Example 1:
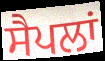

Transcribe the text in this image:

ਸੈਪਲਾਂ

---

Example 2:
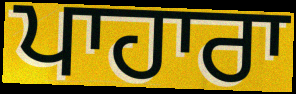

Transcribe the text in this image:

ਪਾਹਾਰਾ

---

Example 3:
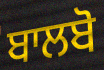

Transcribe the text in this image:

ਬਾਲਬੋ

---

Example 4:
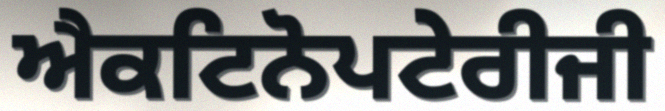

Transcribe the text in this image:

ਐਕਟਿਨੋਪਟੇਰੀਜੀ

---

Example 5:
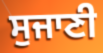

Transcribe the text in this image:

ਸੁਜਾਣੀ